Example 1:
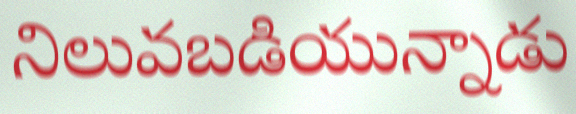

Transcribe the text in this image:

నిలువబడియున్నాడు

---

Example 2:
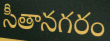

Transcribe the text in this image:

సీతానగరం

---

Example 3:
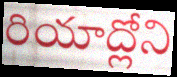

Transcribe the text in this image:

రియాద్లోని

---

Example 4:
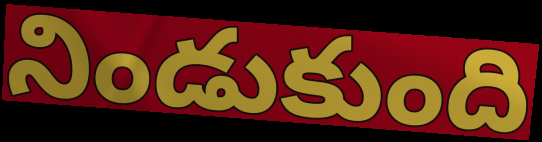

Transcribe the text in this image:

నిండుకుంది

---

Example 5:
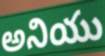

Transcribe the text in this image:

అనియు